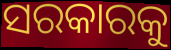
ସରକାରକୁ